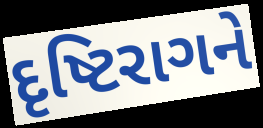
દૃષ્ટિરાગને